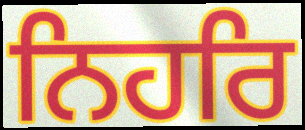
ਨਿਹਰਿ